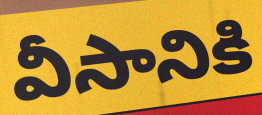
వీసానికి